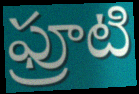
ఫ్రూటి